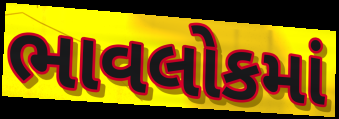
ભાવલોકમાં